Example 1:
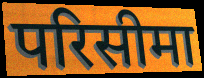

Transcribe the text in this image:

परिसीमा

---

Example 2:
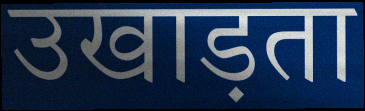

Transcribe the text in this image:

उखाड़ता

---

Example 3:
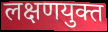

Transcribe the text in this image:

लक्षणयुक्त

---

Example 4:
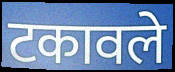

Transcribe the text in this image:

टकावले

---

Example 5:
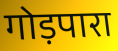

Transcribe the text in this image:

गोड़पारा